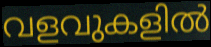
വളവുകളിൽ